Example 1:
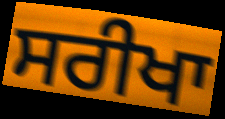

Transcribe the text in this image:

ਸਰੀਖਾ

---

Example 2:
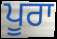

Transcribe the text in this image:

ਪੂਰਾ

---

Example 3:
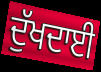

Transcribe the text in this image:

ਦੁੱਖਦਾਈ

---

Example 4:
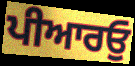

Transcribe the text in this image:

ਪੀਆਰਓੁ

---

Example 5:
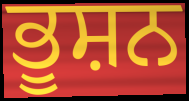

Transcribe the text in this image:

ਭੂਸ਼ਨ